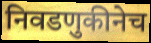
निवडणुकीनेच